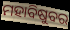
ମହାବିଷୁବର